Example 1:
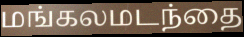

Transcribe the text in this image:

மங்கலமடந்தை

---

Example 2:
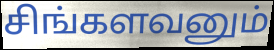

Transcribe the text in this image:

சிங்களவனும்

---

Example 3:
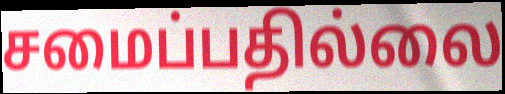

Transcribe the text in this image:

சமைப்பதில்லை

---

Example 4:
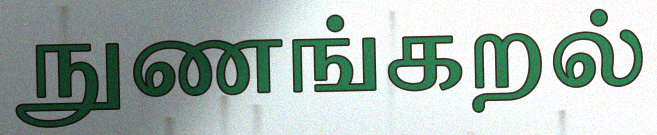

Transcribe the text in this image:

நுணங்கறல்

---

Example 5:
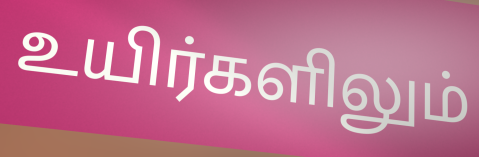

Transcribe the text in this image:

உயிர்களிலும்